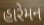
હારેમન